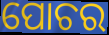
ପୋଚର